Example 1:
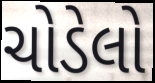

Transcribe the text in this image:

ચોડેલો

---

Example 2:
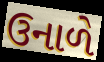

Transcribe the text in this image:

ઉનાળે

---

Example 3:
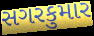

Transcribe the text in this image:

સગરકુમાર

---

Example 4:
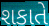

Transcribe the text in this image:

શકાતે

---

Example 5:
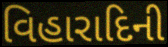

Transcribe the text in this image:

વિહારાદિની